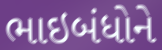
ભાઇબંધોને